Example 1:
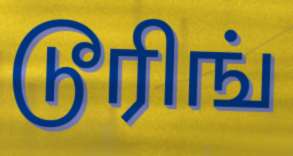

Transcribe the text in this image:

டூரிங்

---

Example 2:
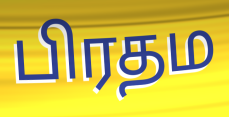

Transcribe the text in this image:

பிரதம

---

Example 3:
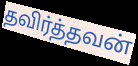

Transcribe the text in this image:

தவிர்த்தவன்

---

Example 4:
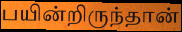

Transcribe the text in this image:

பயின்றிருந்தான்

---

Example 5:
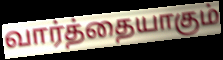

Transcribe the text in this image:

வார்த்தையாகும்